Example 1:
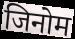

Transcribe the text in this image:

जिनोम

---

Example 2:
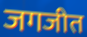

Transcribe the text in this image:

जगजीत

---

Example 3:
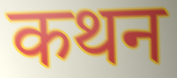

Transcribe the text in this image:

कथन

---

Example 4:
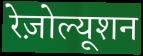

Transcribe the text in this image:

रेज़ोल्यूशन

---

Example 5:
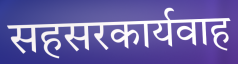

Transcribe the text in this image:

सहसरकार्यवाह